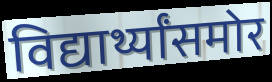
विद्यार्थ्यांसमोर